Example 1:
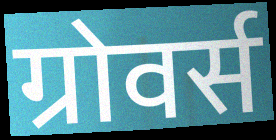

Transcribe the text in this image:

ग्रोवर्स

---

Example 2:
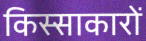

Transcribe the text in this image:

किस्साकारों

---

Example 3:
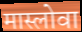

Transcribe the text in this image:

मास्लोवा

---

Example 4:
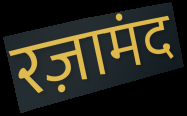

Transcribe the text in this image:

रज़ामंद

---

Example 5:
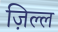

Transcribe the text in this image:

ज़िल्ल